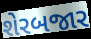
શેરબજાર